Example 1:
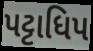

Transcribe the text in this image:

પટ્ટાધિપ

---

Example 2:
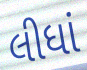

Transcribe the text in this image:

લીધાં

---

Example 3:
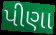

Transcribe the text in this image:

પીણા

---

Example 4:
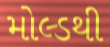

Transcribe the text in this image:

મોલ્ડથી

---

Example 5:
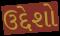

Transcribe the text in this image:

ઉદ્દેશો